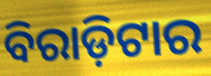
ବିରାଡ଼ିଟାର